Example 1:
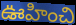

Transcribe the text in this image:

ఊహించి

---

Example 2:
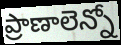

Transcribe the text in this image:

ప్రాణాలెన్నో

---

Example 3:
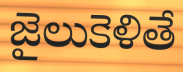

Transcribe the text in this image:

జైలుకెళితే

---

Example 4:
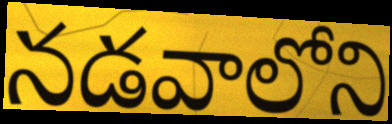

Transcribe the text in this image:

నడవాలోని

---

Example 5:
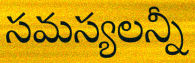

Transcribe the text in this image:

సమస్యలన్నీ